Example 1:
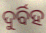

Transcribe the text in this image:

ଦୁର୍ବିହ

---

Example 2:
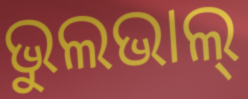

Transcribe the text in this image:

ଭୁଲଭାଲ୍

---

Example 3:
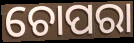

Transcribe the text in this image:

ଚୋପରା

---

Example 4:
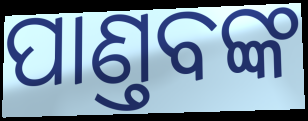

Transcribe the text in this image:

ପାଣ୍ତବଙ୍କ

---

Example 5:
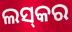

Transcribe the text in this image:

ଲସ୍‌କର